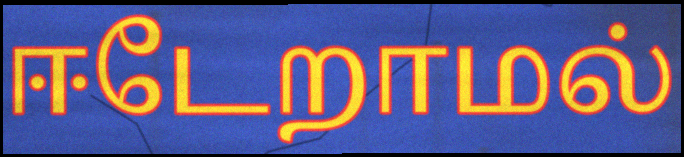
ஈடேறாமல்